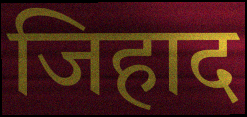
जिहाद